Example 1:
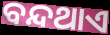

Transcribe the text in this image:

ବନ୍ଦଥାଏ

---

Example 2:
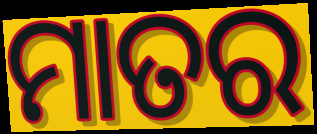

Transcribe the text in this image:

ମାତର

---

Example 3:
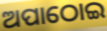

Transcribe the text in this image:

ଅପାଠୋଇ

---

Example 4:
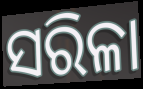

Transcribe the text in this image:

ସରିଳା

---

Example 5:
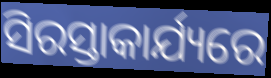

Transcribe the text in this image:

ସିରସ୍ତାକାର୍ଯ୍ୟରେ